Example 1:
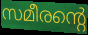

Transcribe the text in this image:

സമീരന്റെ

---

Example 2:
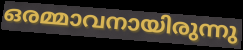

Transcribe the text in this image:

ഒരമ്മാവനായിരുന്നു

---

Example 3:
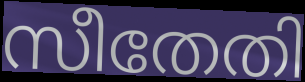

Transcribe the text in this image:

സീതേതി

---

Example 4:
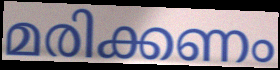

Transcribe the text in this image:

മരിക്കണം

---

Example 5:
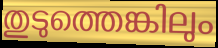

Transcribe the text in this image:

തുടുത്തെങ്കിലും